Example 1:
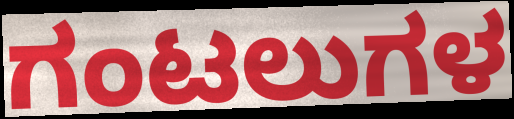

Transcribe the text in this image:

ಗಂಟಲುಗಳ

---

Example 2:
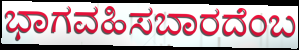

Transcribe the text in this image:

ಭಾಗವಹಿಸಬಾರದೆಂಬ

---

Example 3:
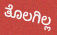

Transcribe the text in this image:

ತೊಲಗಿಲ್ಲ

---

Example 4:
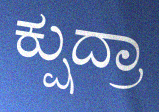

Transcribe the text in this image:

ಕ್ಷುದ್ರಾ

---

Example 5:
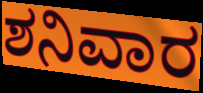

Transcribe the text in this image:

ಶನಿವಾರ